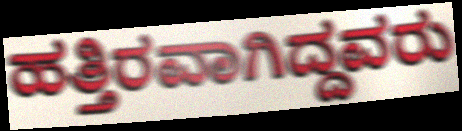
ಹತ್ತಿರವಾಗಿದ್ದವರು